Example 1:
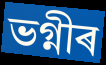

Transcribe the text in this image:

ভগ্নীৰ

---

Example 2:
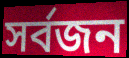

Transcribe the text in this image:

সৰ্বজন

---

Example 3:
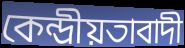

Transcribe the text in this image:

কেন্দ্ৰীয়তাবাদী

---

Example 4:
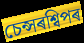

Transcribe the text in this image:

চেন্সৰশ্বিপৰ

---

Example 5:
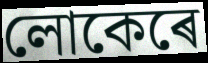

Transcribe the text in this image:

লোকেৰে